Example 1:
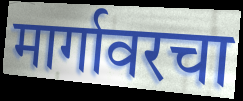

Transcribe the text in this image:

मार्गावरचा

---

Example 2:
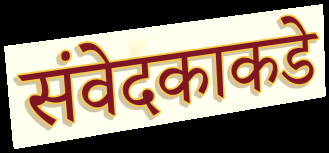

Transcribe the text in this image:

संवेदकाकडे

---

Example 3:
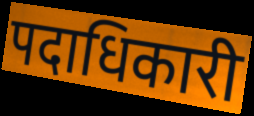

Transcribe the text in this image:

पदाधिकारी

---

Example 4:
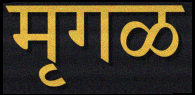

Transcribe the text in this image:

मृगळ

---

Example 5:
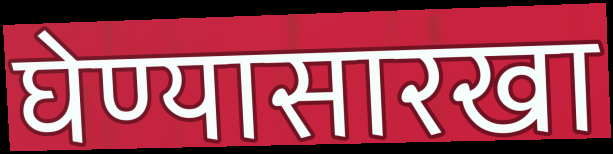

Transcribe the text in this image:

घेण्यासारखा